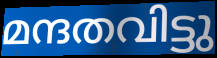
മന്ദതവിട്ടു